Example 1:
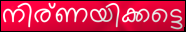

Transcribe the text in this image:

നിര്ണയിക്കട്ടെ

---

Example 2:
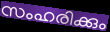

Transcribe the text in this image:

സംഹരിക്കും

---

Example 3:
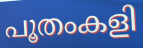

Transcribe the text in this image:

പൂതംകളി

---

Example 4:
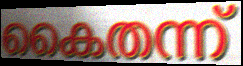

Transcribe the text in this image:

കൈതന്ന്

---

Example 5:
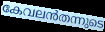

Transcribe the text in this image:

കേവലൻതന്നുടെ